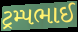
ટ્રમ્પભાઈ